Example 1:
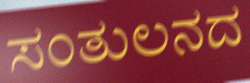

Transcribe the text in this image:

ಸಂತುಲನದ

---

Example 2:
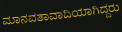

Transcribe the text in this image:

ಮಾನವತಾವಾದಿಯಾಗಿದ್ದರು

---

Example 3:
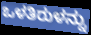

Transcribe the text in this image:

ಒಳತಿರುಳನ್ನು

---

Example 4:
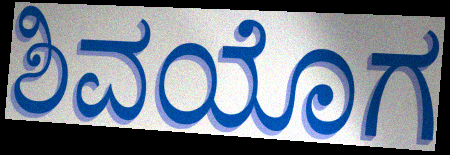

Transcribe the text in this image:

ಶಿವಯೊಗ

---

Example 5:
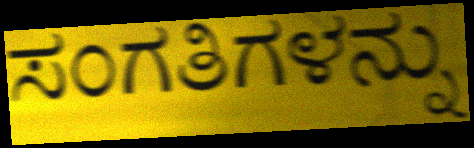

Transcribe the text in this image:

ಸಂಗತಿಗಳನ್ನು